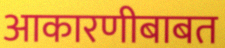
आकारणीबाबत